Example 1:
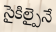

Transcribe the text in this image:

సైకిల్పైనే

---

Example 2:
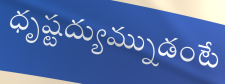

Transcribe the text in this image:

ధృష్టద్యుమ్నుడంటే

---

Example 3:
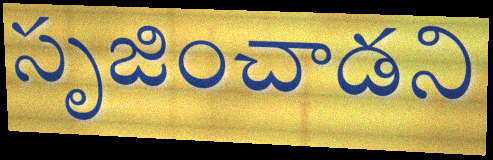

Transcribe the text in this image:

సృజించాడని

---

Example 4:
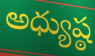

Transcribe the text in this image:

అధ్యుష్ఠ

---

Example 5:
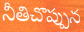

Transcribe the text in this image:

నీతిచొప్పున